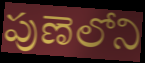
పుణెలోని